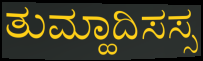
ತುಮ್ಹಾದಿಸಸ್ಸ